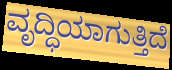
ವೃದ್ಧಿಯಾಗುತ್ತಿದೆ